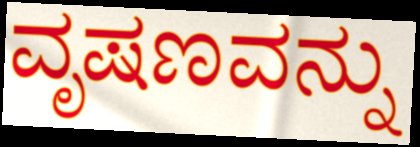
ವೃಷಣವನ್ನು